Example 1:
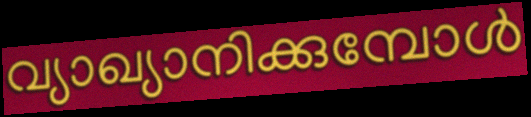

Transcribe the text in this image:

വ്യാഖ്യാനിക്കുമ്പോൾ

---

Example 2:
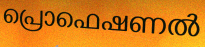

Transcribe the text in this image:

പ്രൊഫെഷണൽ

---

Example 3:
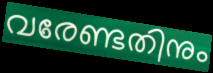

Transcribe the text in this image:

വരേണ്ടതിനും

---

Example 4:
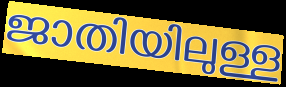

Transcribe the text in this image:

ജാതിയിലുള്ള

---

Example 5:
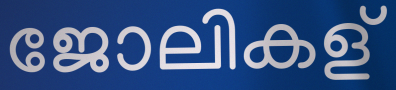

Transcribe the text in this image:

ജോലികള്